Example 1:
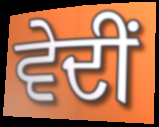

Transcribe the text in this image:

ਵੇਦੀਂ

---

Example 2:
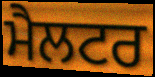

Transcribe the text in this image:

ਮੈਲਟਰ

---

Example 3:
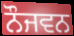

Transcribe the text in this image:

ਨੌਜਵਨ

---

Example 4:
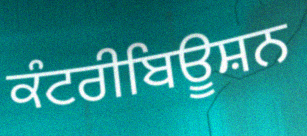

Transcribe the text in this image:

ਕੰਟਰੀਬਿਊਸ਼ਨ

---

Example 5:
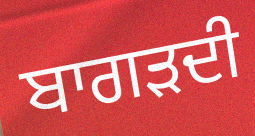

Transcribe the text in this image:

ਬਾਗੜਦੀ